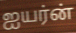
ஐயர்ன்